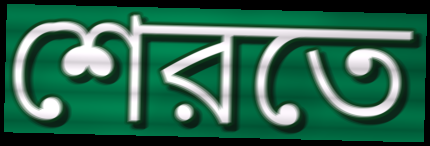
শেরতে